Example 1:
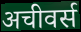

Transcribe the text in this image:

अचीवर्स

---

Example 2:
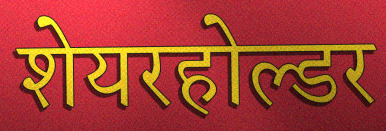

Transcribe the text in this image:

शेयरहोल्डर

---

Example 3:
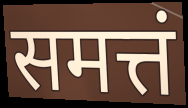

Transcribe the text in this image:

समत्तं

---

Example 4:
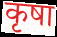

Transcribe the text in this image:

कृषा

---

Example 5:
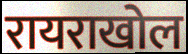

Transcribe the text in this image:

रायराखोल